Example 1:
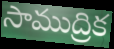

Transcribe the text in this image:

సాముద్రిక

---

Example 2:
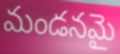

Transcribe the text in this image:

మండనమై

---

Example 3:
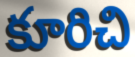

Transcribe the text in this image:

కూరిచి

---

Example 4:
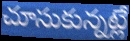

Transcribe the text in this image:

చూసుకున్నట్లే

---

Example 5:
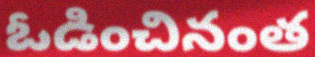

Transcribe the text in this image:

ఓడించినంత